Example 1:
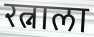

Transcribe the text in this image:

रत्नाला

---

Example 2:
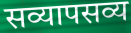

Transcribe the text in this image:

सव्यापसव्य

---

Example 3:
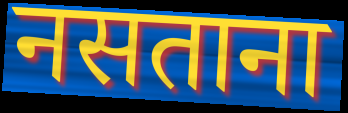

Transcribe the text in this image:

नसताना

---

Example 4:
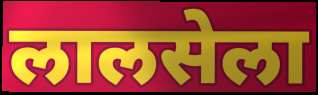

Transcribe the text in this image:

लालसेला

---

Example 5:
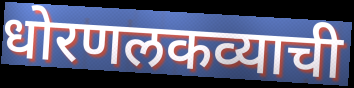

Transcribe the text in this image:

धोरणलकव्याची